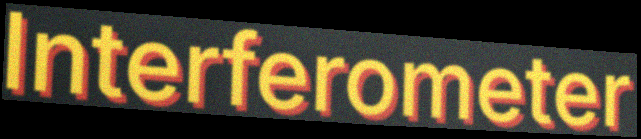
Interferometer